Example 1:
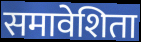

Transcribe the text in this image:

समावेशिता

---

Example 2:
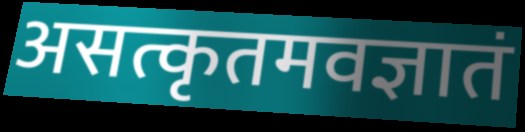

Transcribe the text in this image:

असत्कृतमवज्ञातं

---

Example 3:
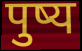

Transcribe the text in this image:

पुष्य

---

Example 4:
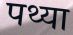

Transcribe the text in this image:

पथ्या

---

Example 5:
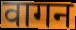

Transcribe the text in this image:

वागन